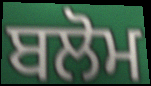
ਬਲੋਮ